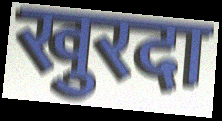
खुरदा